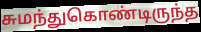
சுமந்துகொண்டிருந்த